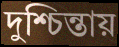
দুশ্চিন্তায়